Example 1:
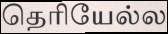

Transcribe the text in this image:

தெரியேல்ல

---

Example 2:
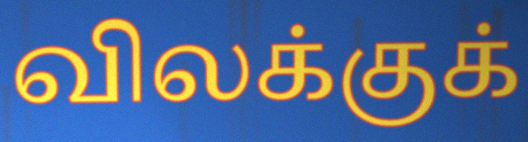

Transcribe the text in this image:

விலக்குக்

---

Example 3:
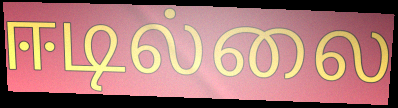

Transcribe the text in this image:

ஈடில்லை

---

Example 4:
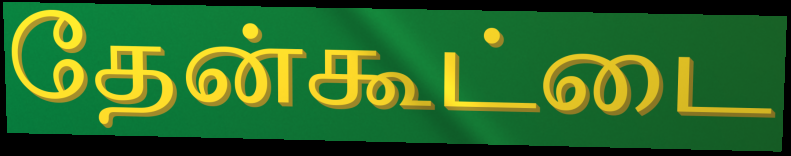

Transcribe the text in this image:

தேன்கூட்டை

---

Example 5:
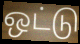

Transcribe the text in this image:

ஒட்டு